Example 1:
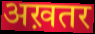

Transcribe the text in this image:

अख़तर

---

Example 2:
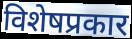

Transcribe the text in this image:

विशेषप्रकार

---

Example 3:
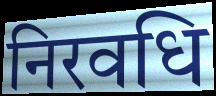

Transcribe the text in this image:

निरवधि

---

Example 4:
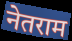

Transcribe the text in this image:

नेतराम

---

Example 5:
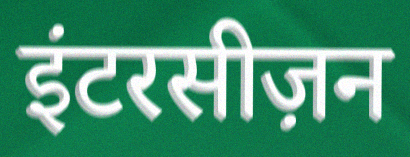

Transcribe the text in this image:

इंटरसीज़न